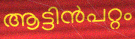
ആട്ടിൻപറ്റം